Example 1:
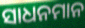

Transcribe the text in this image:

ସାଧନମାନ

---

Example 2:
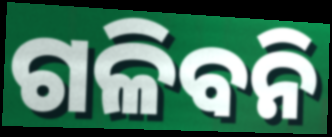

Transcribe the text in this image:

ଗଳିବନି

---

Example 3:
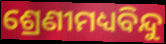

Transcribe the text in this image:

ଶ୍ରେଣୀମଧ୍ୟବିନ୍ଦୁ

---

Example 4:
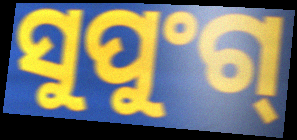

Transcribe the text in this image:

ସୁପୁଂଗ୍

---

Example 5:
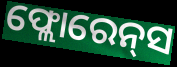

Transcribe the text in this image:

ଫ୍ଲୋରେନ୍‌ସ